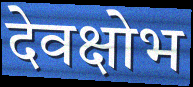
देवक्षोभ